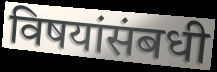
विषयांसंबधी